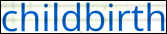
childbirth